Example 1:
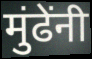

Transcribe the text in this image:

मुंढेंनी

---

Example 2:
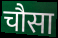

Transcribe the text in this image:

चौसा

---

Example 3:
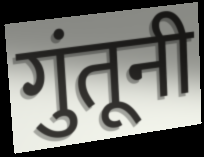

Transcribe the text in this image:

गुंतूनी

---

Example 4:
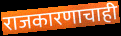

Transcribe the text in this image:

राजकारणाचाही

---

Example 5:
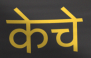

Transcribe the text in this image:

केचे